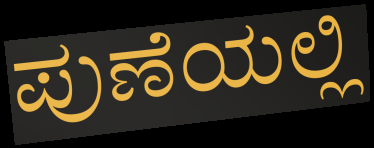
ಪುಣೆಯಲ್ಲಿ